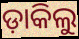
ଡ଼ାକିଲୁ